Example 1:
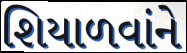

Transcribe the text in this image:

શિયાળવાંને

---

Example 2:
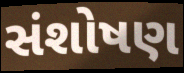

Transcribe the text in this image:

સંશોષણ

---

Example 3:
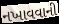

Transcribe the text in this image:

નખાવવાની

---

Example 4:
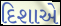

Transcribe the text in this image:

દિશાએ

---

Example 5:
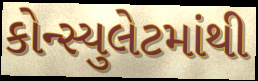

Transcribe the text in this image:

કોન્સ્યુલેટમાંથી